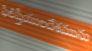
ఫిలిష్తీయులదేశమును